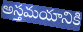
అస్తమయానికి